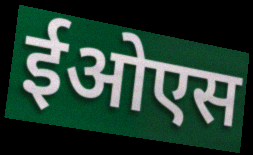
ईओएस